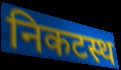
निकटस्‍थ